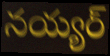
నయ్యర్